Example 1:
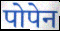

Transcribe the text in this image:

पोपेन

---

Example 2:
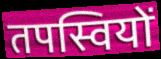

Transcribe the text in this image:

तपस्वियों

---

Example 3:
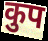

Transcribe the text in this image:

कुप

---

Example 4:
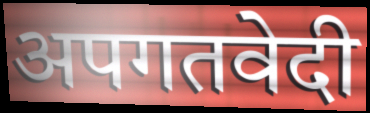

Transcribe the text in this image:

अपगतवेदी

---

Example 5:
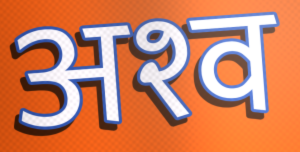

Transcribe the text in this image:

अश्व